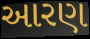
આરણ